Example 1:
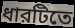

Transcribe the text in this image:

ধারটিতে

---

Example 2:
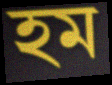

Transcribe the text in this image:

হম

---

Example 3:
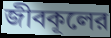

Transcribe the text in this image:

জীবকূলের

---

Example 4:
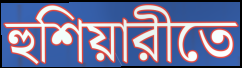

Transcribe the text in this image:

হুশিয়ারীতে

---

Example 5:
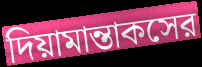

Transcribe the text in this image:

দিয়ামান্তাকসের